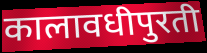
कालावधीपुरती